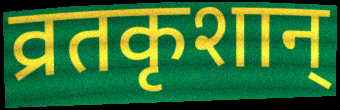
व्रतकृशान्